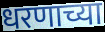
धरणाच्या